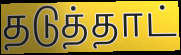
தடுத்தாட்